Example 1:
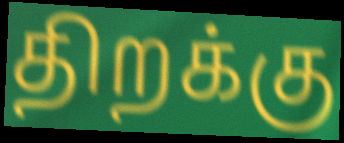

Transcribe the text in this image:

திறக்கு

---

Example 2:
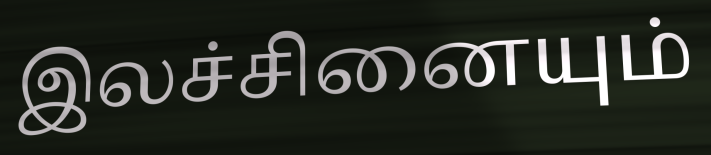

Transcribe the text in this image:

இலச்சினையும்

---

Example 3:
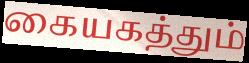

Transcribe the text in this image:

கையகத்தும்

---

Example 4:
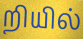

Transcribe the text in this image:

றியில்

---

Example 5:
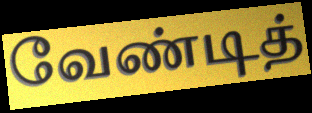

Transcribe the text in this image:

வேண்டித்